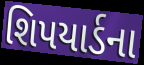
શિપયાર્ડના